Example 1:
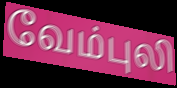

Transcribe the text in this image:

வேம்புலி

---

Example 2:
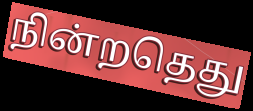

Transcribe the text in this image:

நின்றதெது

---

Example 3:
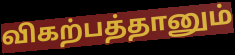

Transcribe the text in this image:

விகற்பத்தானும்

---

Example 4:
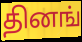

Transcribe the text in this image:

தினங்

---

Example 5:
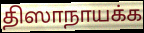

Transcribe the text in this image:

திஸாநாயக்க